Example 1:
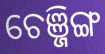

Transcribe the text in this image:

ଚେଞ୍ଜିଙ୍ଗ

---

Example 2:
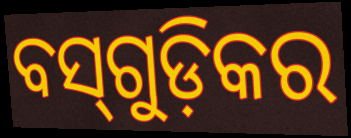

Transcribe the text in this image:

ବସ୍‌ଗୁଡ଼ିକର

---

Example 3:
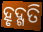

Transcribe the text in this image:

ହୃଦ୍ଗତି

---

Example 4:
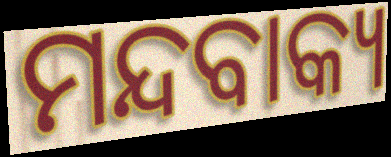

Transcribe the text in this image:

ମନ୍ଦବାକ୍ୟ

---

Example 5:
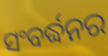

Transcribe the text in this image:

ସଂବର୍ଦ୍ଧନର